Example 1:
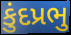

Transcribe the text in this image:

કુંદપ્રભુ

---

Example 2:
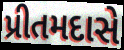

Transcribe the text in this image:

પ્રીતમદાસે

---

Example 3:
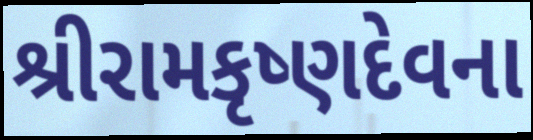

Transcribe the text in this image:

શ્રીરામકૃષ્ણદેવના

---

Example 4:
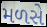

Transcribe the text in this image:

મળસે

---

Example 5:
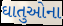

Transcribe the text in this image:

ઘાતુઓના